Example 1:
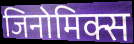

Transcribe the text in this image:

जिनोमिक्स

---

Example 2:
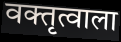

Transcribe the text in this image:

वक्तृत्वाला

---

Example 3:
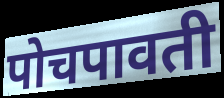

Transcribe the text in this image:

पोचपावती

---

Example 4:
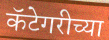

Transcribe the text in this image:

कॅटेगरीच्या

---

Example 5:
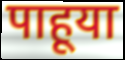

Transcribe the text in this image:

पाहूया